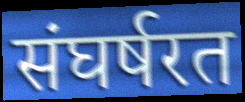
संघर्षरत